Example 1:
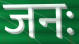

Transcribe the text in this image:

जनः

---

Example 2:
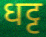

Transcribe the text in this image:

धट्ट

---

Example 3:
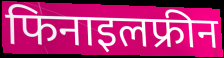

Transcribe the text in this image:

फिनाइलफ्रीन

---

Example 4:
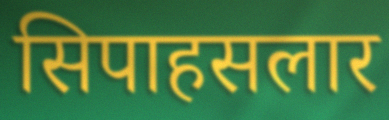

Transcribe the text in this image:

सिपाहसलार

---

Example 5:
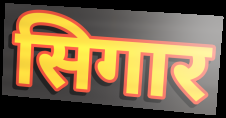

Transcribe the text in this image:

सिगार